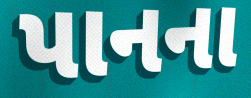
પાનના